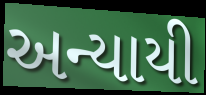
અન્યાયી